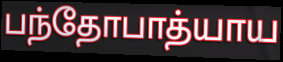
பந்தோபாத்யாய